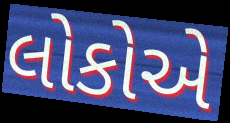
લોકોએ